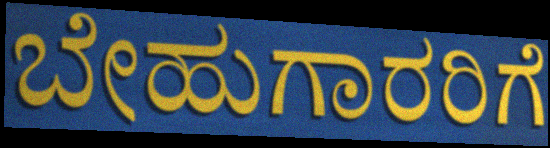
ಬೇಹುಗಾರರಿಗೆ